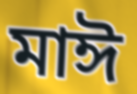
মাঈ